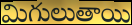
మిగులుతాయి